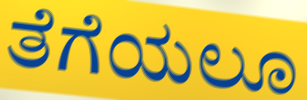
ತೆಗೆಯಲೂ